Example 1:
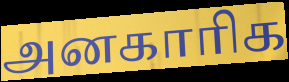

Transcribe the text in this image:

அனகாரிக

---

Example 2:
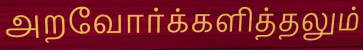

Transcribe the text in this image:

அறவோர்க்களித்தலும்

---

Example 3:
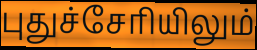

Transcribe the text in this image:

புதுச்சேரியிலும்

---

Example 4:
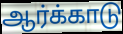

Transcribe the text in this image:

ஆர்க்காடு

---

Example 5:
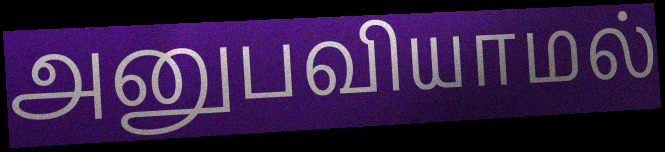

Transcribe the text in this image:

அனுபவியாமல்